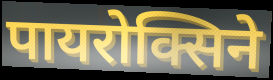
पायरोक्सिने